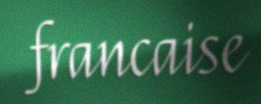
francaise